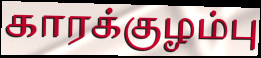
காரக்குழம்பு